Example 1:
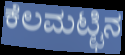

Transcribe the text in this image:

ಕೆಲಮಟ್ಟಿನ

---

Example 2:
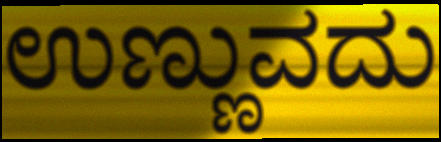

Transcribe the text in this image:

ಉಣ್ಣುವದು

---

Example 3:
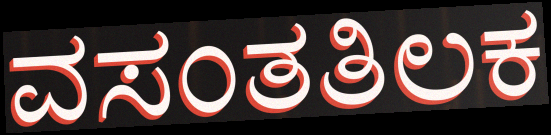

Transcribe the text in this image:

ವಸಂತತಿಲಕ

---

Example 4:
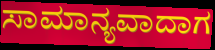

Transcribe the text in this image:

ಸಾಮಾನ್ಯವಾದಾಗ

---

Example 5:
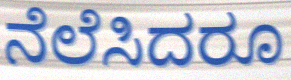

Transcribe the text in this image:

ನೆಲೆಸಿದರೂ